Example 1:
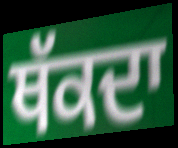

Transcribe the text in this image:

ਥੱਕਦਾ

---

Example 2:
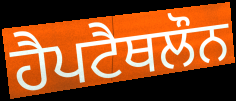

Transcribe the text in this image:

ਹੈਪਟੈਥਲੌਨ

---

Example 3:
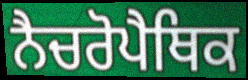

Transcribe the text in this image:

ਨੈਚਰੋਪੈਥਿਕ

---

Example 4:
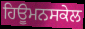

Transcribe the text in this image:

ਹਿਊਮਨਸਕੇਲ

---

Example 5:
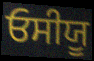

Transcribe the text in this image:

ਓਸੀਯੂ